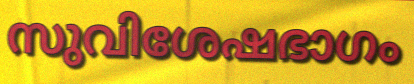
സുവിശേഷഭാഗം